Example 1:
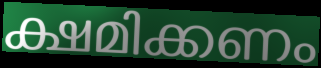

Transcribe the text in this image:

ക്ഷമിക്കണം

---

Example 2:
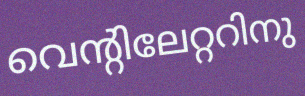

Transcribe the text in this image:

വെന്റിലേറ്ററിനു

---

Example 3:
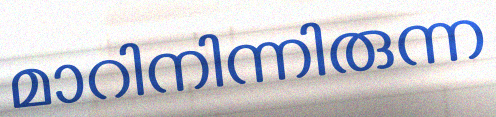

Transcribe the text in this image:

മാറിനിന്നിരുന്ന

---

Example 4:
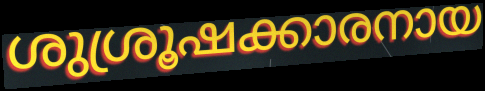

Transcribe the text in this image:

ശുശ്രൂഷക്കാരനായ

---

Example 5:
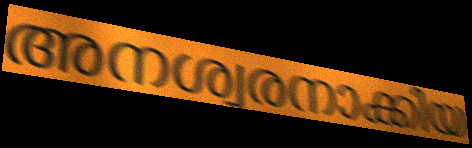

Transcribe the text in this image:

അനശ്വരനാക്കിയ